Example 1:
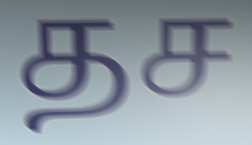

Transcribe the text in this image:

தச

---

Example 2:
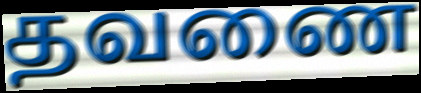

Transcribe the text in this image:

தவணை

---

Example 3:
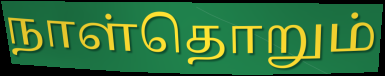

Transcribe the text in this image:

நாள்தொறும்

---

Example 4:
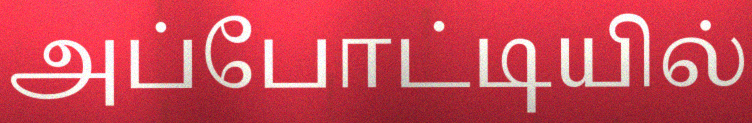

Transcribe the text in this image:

அப்போட்டியில்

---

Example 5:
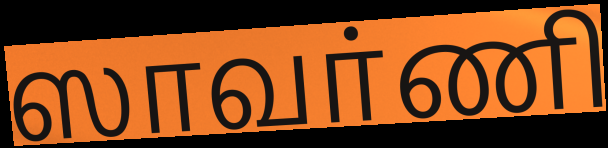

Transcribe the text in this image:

ஸாவர்ணி